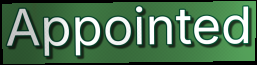
Appointed